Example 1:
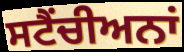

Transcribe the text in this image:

ਸਟੈਂਚੀਅਨਾਂ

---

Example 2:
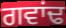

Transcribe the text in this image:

ਗਵਾਂਢ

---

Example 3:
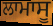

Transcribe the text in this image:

ਲਾਮਾਸੂ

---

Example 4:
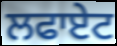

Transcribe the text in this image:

ਲਫਾਏਟ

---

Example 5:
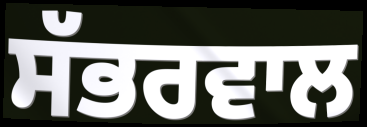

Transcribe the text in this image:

ਸੱਭਰਵਾਲ